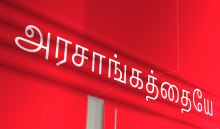
அரசாங்கத்தையே